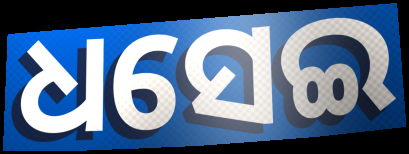
ଧସେଇ